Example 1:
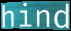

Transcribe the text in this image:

hind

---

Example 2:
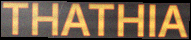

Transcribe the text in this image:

THATHIA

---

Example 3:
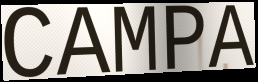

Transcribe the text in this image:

CAMPA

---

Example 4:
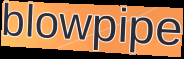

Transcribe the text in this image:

blowpipe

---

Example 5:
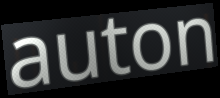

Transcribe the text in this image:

auton